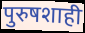
पुरुषशाही